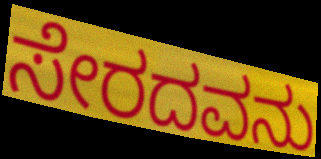
ಸೇರದವನು